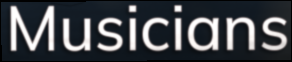
Musicians